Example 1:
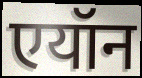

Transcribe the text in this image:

एयॉन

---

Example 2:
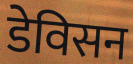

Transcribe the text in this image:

डेविसन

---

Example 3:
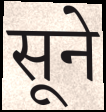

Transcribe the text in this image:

सूने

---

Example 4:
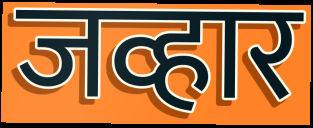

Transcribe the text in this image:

जव्हार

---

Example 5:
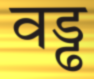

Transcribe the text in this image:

वड्ढ